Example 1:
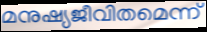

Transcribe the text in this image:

മനുഷ്യജീവിതമെന്ന്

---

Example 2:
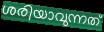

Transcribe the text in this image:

ശരിയാവുന്നത്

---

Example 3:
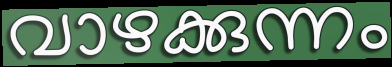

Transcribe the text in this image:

വാഴക്കുന്നം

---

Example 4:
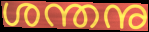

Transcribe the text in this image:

ശന്തനു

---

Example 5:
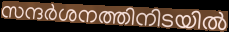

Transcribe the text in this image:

സന്ദർശനത്തിനിടയിൽ